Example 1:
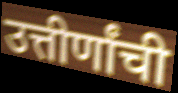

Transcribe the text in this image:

उत्तीर्णांची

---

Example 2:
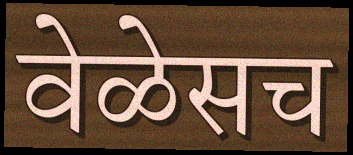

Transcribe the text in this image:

वेळेसच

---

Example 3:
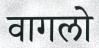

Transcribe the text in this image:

वागलो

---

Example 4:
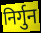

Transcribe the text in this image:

निर्गुन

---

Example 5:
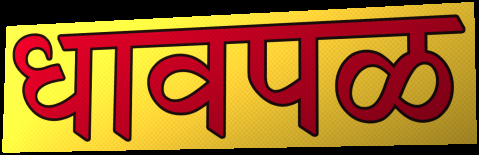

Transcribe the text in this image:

धावपळ